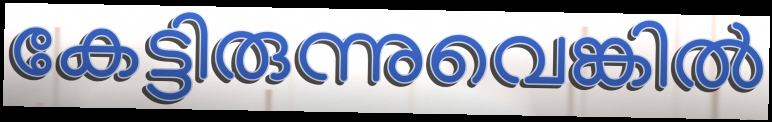
കേട്ടിരുന്നുവെങ്കിൽ